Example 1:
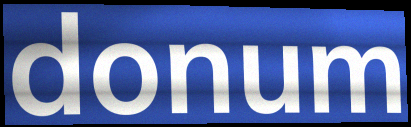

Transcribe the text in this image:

donum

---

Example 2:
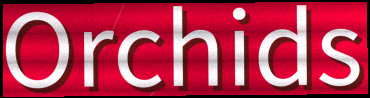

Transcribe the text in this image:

Orchids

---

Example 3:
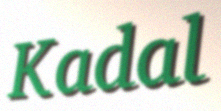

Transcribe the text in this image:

Kadal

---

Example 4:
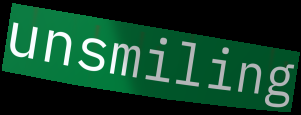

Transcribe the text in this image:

unsmiling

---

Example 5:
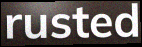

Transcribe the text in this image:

rusted